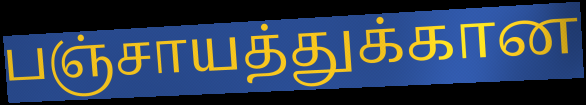
பஞ்சாயத்துக்கான